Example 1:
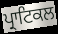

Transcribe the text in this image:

ਪ੍ਰਾਟਿਕਲ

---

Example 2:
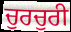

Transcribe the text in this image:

ਚੁਰਚੁਰੀ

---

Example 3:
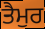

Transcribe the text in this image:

ਤੈਮੁਰ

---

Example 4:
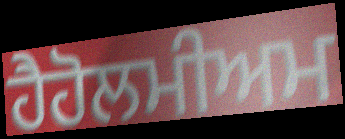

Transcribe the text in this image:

ਹੈਹੋਲਮੀਅਮ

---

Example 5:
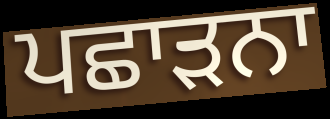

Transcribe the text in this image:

ਪਛਾੜਨਾ